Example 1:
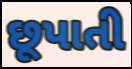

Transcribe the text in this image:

છૂપાતી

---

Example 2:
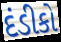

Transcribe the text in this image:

દંડીકો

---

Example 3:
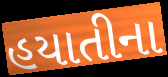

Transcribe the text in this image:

હયાતીના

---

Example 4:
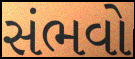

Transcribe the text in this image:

સંભવો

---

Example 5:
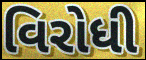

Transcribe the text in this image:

વિરોધી